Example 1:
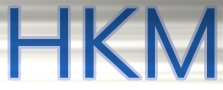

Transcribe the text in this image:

HKM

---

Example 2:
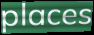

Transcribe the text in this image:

places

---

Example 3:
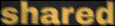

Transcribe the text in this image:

shared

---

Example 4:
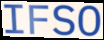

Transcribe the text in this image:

IFSO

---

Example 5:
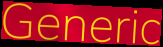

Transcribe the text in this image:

Generic